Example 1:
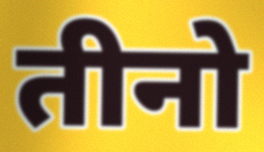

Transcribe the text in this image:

तीनो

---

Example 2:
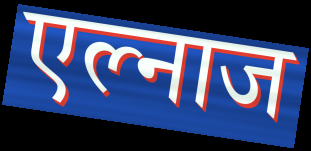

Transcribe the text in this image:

एल्नाज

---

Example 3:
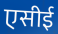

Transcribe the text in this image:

एसीई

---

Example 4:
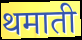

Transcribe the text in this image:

थमाती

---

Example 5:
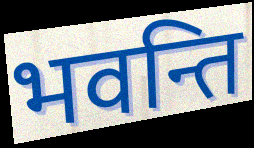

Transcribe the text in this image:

भवन्ति